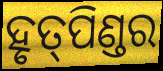
ହୃତ୍‌ପିଣ୍ଡର